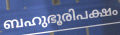
ബഹുഭൂരിപക്ഷം